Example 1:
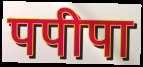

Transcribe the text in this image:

पपीपा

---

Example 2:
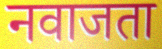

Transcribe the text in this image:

नवाजता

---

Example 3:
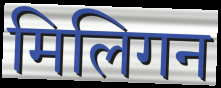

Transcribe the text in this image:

मिलिगन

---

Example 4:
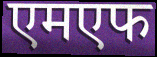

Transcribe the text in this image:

एमएफ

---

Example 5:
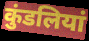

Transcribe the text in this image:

कुंडलियां